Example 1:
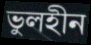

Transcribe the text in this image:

ভুলহীন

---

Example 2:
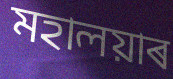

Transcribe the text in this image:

মহালয়াৰ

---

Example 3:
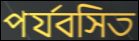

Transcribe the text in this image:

পৰ্যবসিত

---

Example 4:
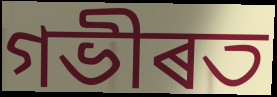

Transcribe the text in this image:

গভীৰত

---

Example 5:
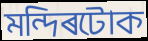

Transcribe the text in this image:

মন্দিৰটোক